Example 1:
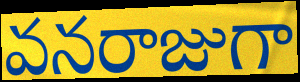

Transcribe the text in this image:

వనరాజుగా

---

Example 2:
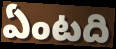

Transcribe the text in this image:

ఏంటది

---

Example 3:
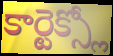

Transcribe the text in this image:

కార్టెక్స్లో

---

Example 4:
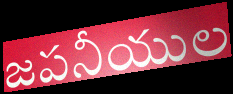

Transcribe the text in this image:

జపనీయుల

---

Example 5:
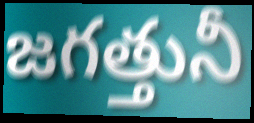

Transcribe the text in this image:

జగత్తునీ